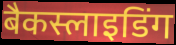
बैकस्लाइडिंग